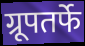
ग्रूपतर्फे